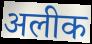
अलीक